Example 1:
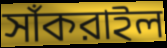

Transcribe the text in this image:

সাঁকরাইল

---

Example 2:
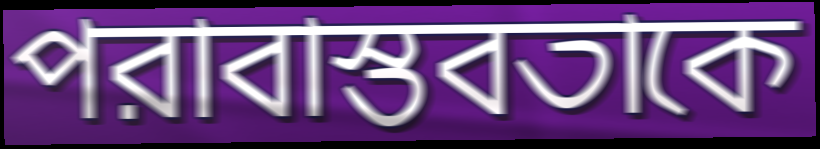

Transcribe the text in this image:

পরাবাস্তবতাকে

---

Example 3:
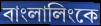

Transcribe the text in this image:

বাংলালিংকে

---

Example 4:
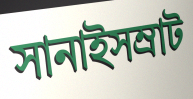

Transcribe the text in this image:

সানাইসম্রাট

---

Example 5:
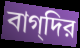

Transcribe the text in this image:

বাগ্‌দির